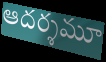
ఆదర్శమూ